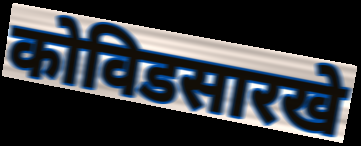
कोविडसारखे